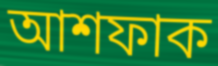
আশফাক